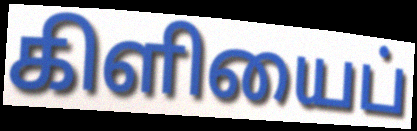
கிளியைப்